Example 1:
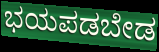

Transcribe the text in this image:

ಭಯಪಡಬೇಡ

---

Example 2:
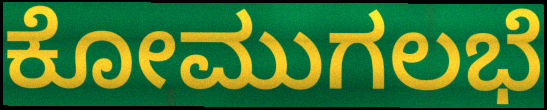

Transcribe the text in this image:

ಕೋಮುಗಲಭೆ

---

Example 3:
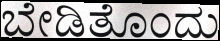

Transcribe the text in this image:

ಬೇಡಿತೊಂದು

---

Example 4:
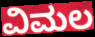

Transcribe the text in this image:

ವಿಮಲ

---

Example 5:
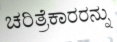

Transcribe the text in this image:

ಚರಿತ್ರೆಕಾರರನ್ನು